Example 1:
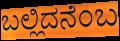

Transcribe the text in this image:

ಬಲ್ಲಿದನೆಂಬ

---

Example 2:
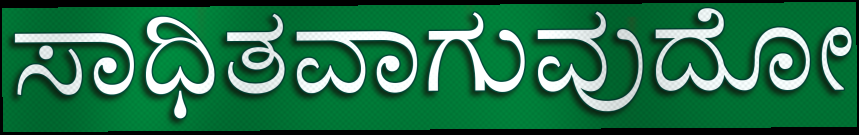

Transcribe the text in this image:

ಸಾಧಿತವಾಗುವುದೋ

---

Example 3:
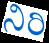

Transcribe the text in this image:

ನಿರಿ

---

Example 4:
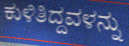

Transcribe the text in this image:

ಕುಳಿತಿದ್ದವಳನ್ನು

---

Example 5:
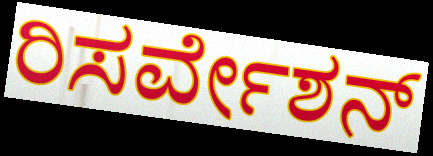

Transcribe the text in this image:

ರಿಸರ್ವೇಶನ್